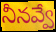
నీనవ్వే